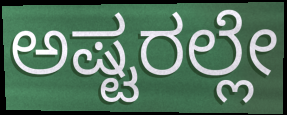
ಅಷ್ಟರಲ್ಲೇ